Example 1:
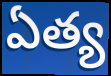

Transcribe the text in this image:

ఏత్య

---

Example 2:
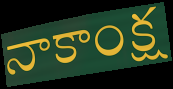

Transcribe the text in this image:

నాకాంక్ష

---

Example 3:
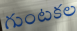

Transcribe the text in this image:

గుంటకల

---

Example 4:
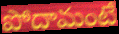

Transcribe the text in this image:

పోదామంటే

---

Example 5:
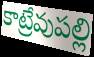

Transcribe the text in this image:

కాట్రేవుపల్లి